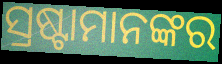
ସ୍ରଷ୍ଟାମାନଙ୍କର